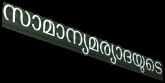
സാമാന്യമര്യാദയുടെ